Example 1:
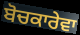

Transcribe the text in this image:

ਬੋਚਕਾਰੇਵਾ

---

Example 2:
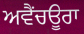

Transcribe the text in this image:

ਅਵੈਂਚਊਰਾ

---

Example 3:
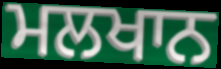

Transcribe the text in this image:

ਮਲਖਾਨ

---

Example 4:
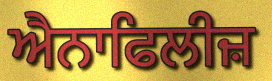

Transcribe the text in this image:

ਐਨਾਫਿਲੀਜ਼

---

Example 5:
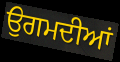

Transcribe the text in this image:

ਉਗਮਦੀਆਂ